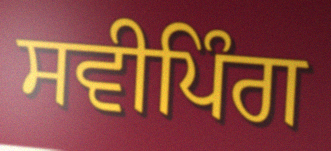
ਸਵੀਪਿੰਗ